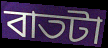
বাতটা